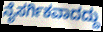
ನೈಸರ್ಗಿಕವಾದದ್ದು